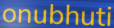
onubhuti